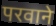
परवाने